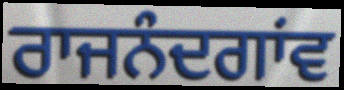
ਰਾਜਨੰਦਗਾਂਵ